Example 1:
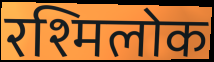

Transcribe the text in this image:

रश्मिलोक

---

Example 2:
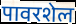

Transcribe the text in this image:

पावरशेल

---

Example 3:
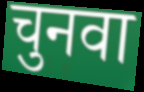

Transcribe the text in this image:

चुनवा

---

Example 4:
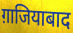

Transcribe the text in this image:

ग़ाजियाबाद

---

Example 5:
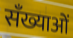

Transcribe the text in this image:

सँख्याओं